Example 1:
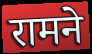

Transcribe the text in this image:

रामने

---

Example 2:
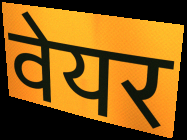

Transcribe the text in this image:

वेयर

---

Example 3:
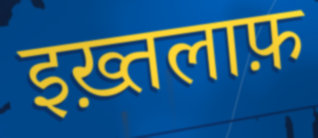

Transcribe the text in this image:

इख़्तलाफ़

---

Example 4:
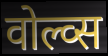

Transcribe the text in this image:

वोल्व्स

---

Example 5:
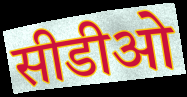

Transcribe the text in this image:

सीडीओ